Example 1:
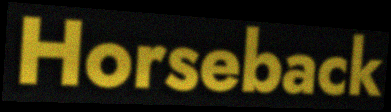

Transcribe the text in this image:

Horseback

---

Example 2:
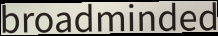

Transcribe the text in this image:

broadminded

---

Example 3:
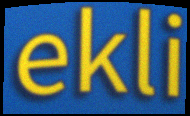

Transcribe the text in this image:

ekli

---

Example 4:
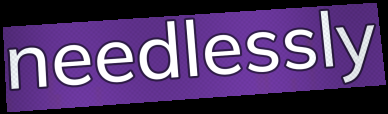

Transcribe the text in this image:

needlessly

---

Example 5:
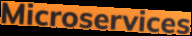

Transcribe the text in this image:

Microservices